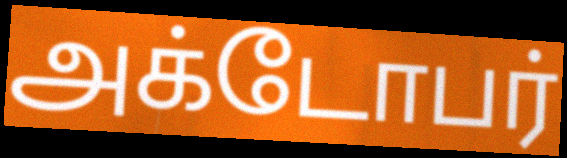
அக்டோபர்